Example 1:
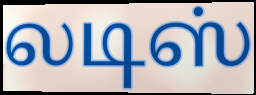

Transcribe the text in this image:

லடிஸ்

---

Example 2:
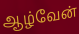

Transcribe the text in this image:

ஆழ்வேன்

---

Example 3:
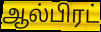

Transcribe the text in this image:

ஆல்பிரட்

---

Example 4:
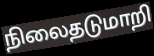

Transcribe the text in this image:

நிலைதடுமாறி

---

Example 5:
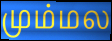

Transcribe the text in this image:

மும்மல